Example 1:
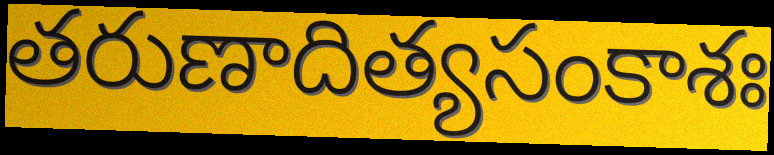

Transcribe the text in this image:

తరుణాదిత్యసంకాశః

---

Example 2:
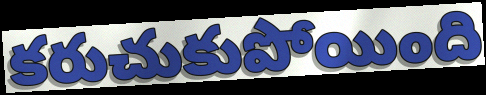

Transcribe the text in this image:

కరుచుకుపోయింది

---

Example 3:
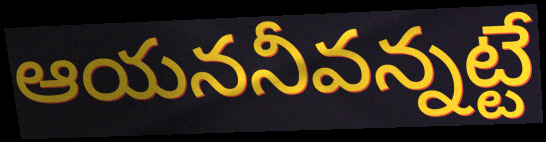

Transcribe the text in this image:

ఆయననీవన్నట్టే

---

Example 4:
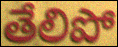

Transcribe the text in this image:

తేలిపో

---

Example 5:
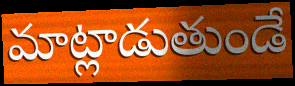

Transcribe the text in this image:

మాట్లాడుతుండే